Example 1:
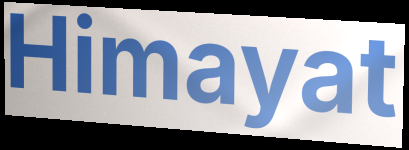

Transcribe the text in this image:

Himayat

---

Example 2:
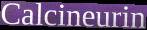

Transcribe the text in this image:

Calcineurin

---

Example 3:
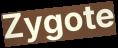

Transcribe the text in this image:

Zygote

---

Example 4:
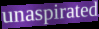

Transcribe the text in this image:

unaspirated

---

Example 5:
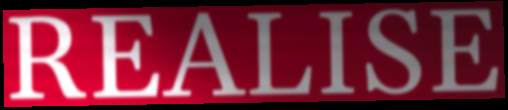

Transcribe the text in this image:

REALISE